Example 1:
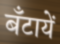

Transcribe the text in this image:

बँटायें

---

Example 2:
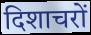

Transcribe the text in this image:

दिशाचरों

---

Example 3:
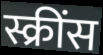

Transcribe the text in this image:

स्क्रींस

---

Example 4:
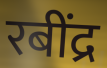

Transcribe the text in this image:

रबींद्र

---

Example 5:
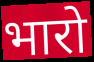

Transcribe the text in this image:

भारो